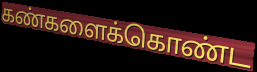
கண்களைக்கொண்ட